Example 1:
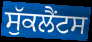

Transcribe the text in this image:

ਸੁੱਕਲੈਂਟਸ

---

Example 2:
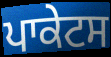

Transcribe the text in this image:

ਪਾਕੇਟਸ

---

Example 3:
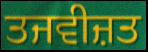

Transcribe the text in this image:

ਤਜਵੀਜ਼ਤ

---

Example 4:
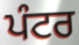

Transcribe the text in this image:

ਪੰਟਰ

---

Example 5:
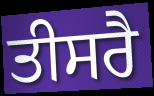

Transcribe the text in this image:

ਤੀਸਰੈ